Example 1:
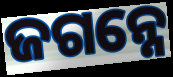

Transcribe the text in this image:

ଜଗନ୍ନେ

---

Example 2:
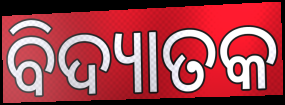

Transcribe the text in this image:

ବିଦ୍ୟାତକ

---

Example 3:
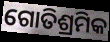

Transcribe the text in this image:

ଗୋତିଶ୍ରମିକ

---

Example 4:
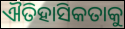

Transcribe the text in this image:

ଐତିହାସିକତାକୁ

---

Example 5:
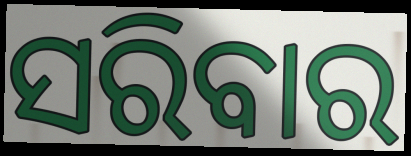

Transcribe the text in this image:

ସରିବାର